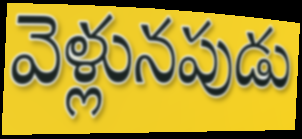
వెళ్లునపుడు